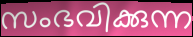
സംഭവിക്കുന്ന